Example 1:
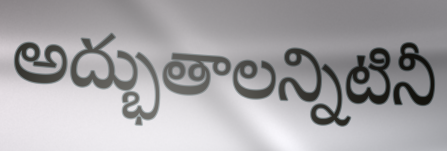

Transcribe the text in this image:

అద్భుతాలన్నిటినీ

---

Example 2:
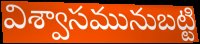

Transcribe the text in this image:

విశ్వాసమునుబట్టి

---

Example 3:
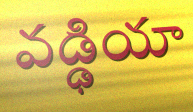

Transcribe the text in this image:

వడ్ఢియా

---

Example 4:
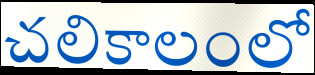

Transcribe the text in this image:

చలికాలంలో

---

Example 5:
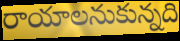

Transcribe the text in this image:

రాయాలనుకున్నది